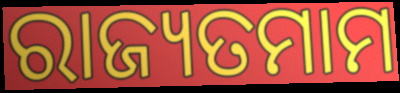
ରାଜ୍ୟତମାମ